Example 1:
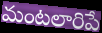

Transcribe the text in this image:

మంటలారిపే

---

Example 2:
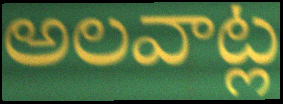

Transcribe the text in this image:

అలవాట్ల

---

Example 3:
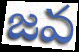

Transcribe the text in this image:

జవ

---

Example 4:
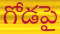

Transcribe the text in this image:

గోడపై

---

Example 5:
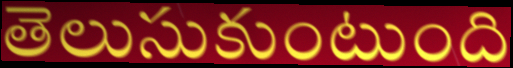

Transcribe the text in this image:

తెలుసుకుంటుంది